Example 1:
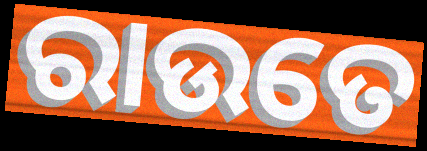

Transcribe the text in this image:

ରାଉତେ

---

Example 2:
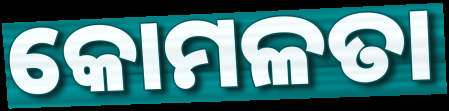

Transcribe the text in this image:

କୋମଳତା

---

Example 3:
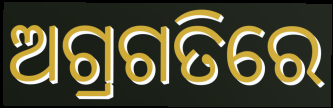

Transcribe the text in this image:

ଅଗ୍ରଗତିରେ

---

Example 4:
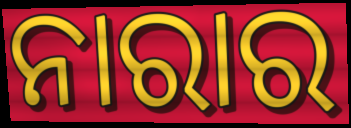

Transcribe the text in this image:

ନାରାର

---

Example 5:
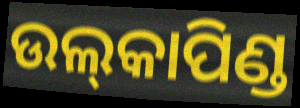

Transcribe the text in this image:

ଉଲ୍‌କାପିଣ୍ଡ